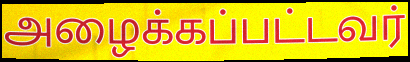
அழைக்கப்பட்டவர்